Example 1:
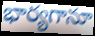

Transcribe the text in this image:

భార్యగానూ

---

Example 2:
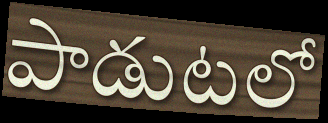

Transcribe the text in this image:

పాడుటలో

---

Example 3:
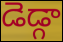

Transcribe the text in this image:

డెడ్గా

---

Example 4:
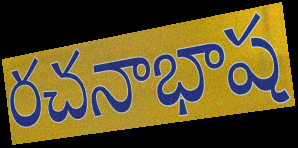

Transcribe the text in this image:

రచనాభాష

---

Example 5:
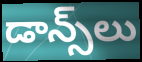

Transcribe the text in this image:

డాన్స్‌లు